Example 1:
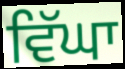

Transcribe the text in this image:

ਵਿੱਘਾ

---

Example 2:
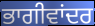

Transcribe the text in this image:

ਭਾਗੀਵਾਂਦਰ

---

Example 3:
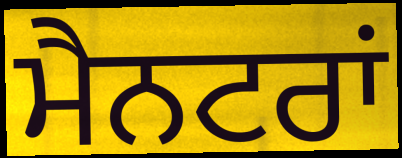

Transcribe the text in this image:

ਮੈਨਟਰਾਂ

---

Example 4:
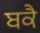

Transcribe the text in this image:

ਬਕੈ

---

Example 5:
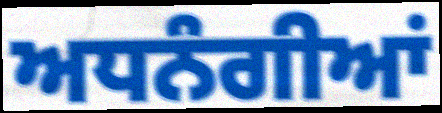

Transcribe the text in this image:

ਅਧਨੰਗੀਆਂ